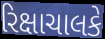
રિક્ષાચાલકે